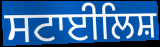
ਸਟਾਈਲਿਸ਼